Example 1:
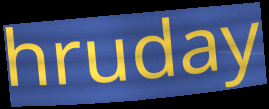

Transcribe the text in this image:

hruday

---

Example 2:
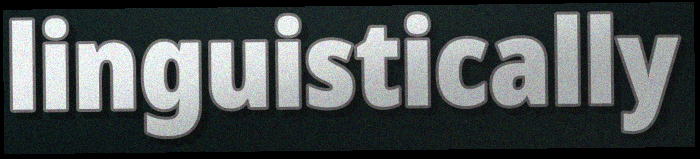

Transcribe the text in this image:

linguistically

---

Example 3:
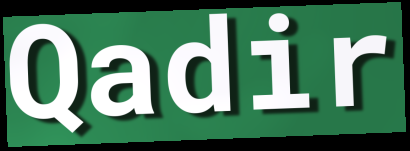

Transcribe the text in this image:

Qadir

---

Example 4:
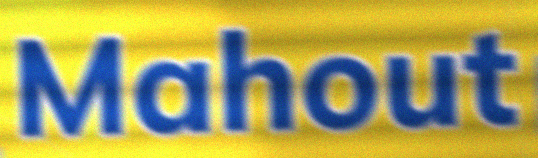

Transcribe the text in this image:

Mahout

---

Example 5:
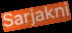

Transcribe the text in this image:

Sarjakni